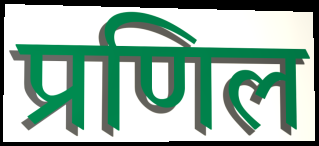
प्रणिल